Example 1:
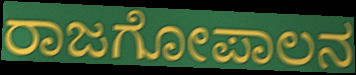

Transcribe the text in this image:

ರಾಜಗೋಪಾಲನ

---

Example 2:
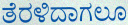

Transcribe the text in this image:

ತೆರಳಿದಾಗಲೂ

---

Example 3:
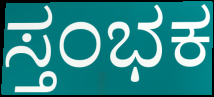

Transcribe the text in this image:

ಸ್ತಂಭಕ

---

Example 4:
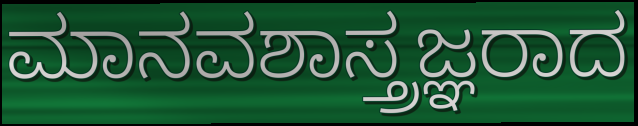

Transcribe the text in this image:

ಮಾನವಶಾಸ್ತ್ರಜ್ಞರಾದ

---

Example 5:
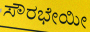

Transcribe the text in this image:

ಸೌರಭೇಯೀ